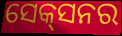
ସେକ୍‍ସନର